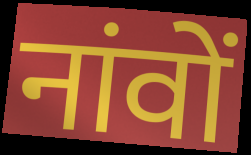
नांवों